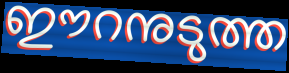
ഈറനുടുത്ത